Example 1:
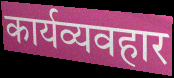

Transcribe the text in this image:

कार्यव्यवहार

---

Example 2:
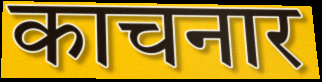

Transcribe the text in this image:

काचनार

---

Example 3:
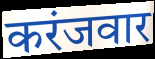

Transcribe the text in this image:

करंजवार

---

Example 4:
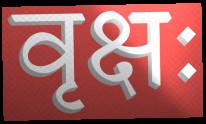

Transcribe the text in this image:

वृक्षः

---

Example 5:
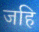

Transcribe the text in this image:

जहि